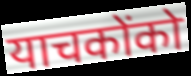
याचकोंको